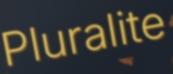
Pluralite